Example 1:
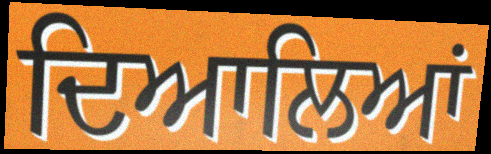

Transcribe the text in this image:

ਦਿਆਲਿਆਂ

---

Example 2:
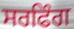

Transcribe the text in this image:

ਸਰਫਿੰਗ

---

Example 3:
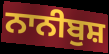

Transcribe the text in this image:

ਨਾਨੀਬੁਸ਼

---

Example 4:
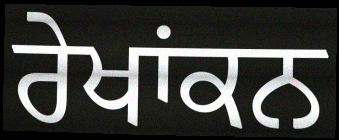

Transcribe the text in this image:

ਰੇਖਾਂਕਨ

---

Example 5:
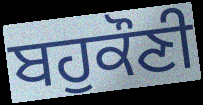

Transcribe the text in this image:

ਬਹੁਕੌਣੀ